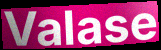
Valase